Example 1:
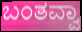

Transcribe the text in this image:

ಬಂತವ್ವಾ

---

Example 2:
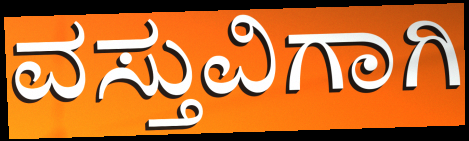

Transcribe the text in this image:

ವಸ್ತುವಿಗಾಗಿ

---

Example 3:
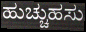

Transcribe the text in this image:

ಹುಚ್ಚುಹಸು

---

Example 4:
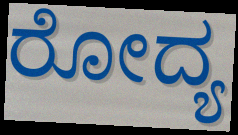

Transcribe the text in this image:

ರೋದ್ಯ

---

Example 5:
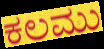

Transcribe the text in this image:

ಕಲಮು